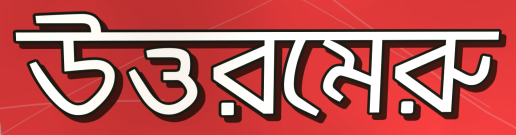
উত্তরমেরু